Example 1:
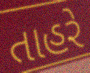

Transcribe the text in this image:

તાહરે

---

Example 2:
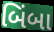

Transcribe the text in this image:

બિંબા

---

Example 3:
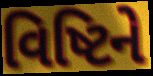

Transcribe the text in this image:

વિષ્ટિને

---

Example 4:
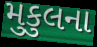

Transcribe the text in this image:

મુકુલના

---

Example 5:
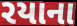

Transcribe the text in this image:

રયાના